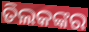
ତିଲକଙ୍କର